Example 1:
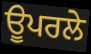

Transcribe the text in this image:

ਊਪਰਲੇ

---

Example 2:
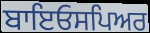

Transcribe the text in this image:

ਬਾਇਓਸਪਿਅਰ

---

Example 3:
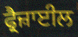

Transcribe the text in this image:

ਫ੍ਰੈਜ਼ਾਈਲ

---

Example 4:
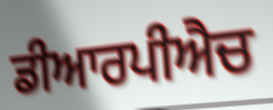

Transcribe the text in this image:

ਡੀਆਰਪੀਐਚ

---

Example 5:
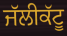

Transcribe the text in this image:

ਜੱਲੀਕੱਟੂ